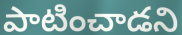
పాటించాడని